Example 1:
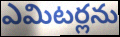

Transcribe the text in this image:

ఎమిటర్లను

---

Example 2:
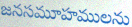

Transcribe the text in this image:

జనసమూహములను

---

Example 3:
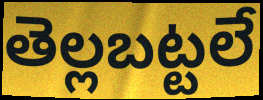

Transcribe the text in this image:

తెల్లబట్టలే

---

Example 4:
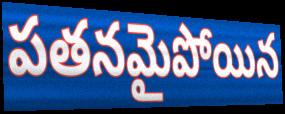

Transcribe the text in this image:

పతనమైపోయిన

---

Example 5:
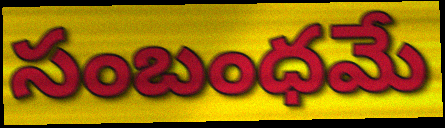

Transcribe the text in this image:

సంబంధమే